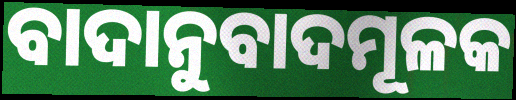
ବାଦାନୁବାଦମୂଳକ